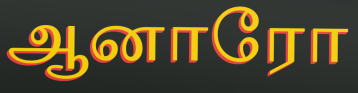
ஆனாரோ